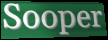
Sooper